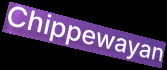
Chippewayan